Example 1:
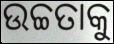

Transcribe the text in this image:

ଉଚ୍ଚତାକୁ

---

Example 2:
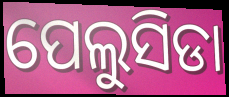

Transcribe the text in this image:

ପେଲୁସିଡା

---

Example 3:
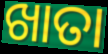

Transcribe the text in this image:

ଖାତା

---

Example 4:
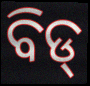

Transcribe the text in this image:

ବିଡ୍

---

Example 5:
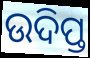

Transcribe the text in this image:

ଉଦିପ୍ତ